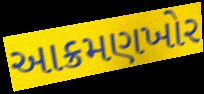
આક્રમણખોર